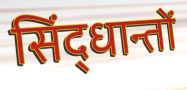
सिंद्धान्तों